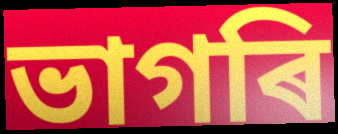
ভাগৰি